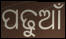
ପଢୁଆଁ